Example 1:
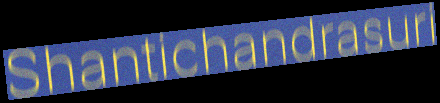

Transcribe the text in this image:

Shantichandrasuri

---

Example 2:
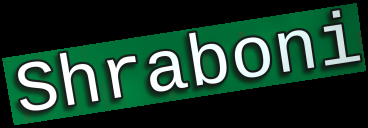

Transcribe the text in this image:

Shraboni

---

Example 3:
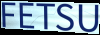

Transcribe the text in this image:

FETSU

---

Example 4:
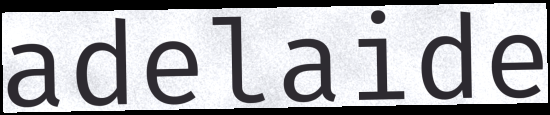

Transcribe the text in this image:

adelaide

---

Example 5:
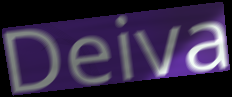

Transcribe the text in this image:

Deiva